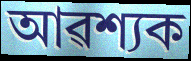
আৱশ্যক